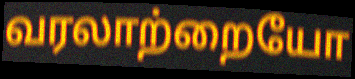
வரலாற்றையோ